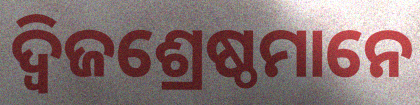
ଦ୍ୱିଜଶ୍ରେଷ୍ଠମାନେ